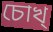
চোখ্